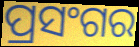
ପ୍ରସଂଗର